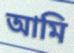
আমি